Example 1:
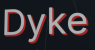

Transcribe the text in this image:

Dyke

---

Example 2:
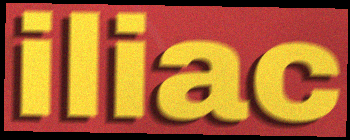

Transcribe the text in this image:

iliac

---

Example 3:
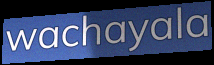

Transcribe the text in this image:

wachayala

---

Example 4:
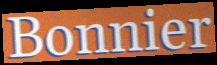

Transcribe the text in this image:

Bonnier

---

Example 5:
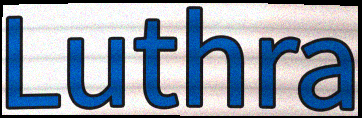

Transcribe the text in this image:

Luthra